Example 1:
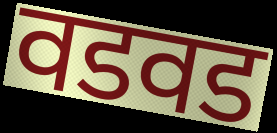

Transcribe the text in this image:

वडवड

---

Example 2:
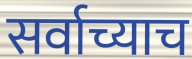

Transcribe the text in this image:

सर्वाच्याच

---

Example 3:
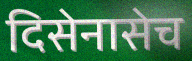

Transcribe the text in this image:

दिसेनासेच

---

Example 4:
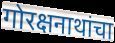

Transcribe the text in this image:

गोरक्षनाथांचा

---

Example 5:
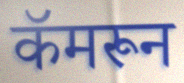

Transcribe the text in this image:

कॅमरून